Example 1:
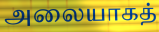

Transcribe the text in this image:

அலையாகத்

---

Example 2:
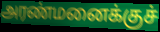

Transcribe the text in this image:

அரண்மனைக்குச்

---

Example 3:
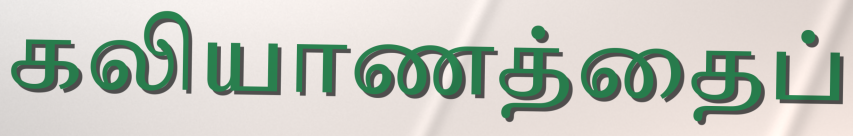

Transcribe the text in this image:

கலியாணத்தைப்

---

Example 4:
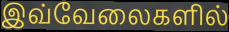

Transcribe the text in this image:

இவ்வேலைகளில்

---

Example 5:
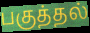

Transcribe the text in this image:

பகுத்தல்